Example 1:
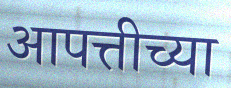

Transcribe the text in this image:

आपत्तीच्या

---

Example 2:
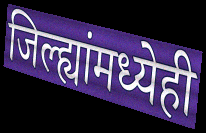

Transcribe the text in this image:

जिल्ह्यांमध्येही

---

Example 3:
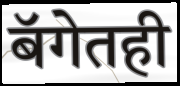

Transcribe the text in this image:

बॅगेतही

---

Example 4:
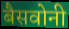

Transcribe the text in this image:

बैसवोनी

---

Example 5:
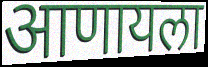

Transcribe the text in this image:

आणायला